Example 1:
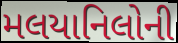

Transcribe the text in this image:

મલયાનિલોની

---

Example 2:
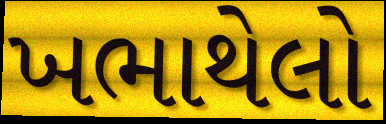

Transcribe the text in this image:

ખભાથેલો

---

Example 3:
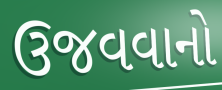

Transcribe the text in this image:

ઉજવવાનો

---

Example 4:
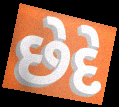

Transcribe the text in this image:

છેદે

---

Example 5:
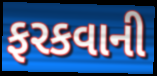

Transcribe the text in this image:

ફરકવાની